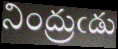
నింద్రుఁడు